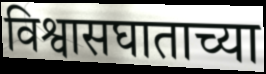
विश्वासघाताच्या